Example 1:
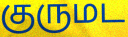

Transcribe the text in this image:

குருமட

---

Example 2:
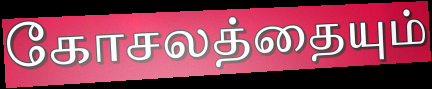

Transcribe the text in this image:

கோசலத்தையும்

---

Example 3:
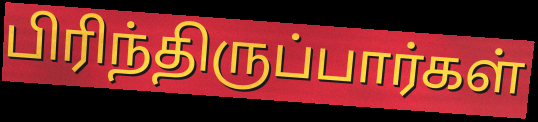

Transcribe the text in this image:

பிரிந்திருப்பார்கள்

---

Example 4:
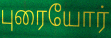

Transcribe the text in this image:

புரையோர்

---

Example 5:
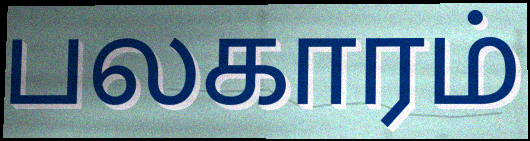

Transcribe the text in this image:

பலகாரம்